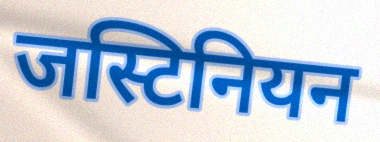
जस्टिनियन